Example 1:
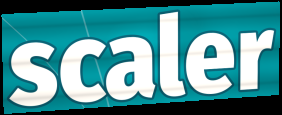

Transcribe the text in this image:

scaler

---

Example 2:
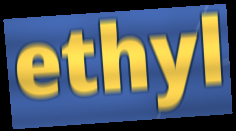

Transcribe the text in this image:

ethyl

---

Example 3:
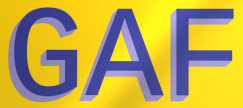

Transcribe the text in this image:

GAF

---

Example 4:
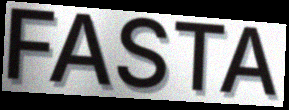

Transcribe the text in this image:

FASTA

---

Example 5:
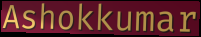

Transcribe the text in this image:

Ashokkumar